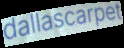
dallascarpet